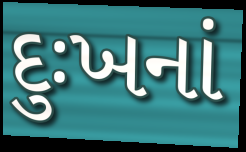
દુઃખનાં